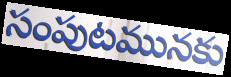
సంపుటమునకు